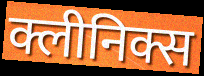
क्लीनिक्स